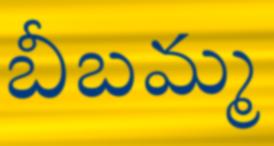
బీబమ్మ